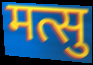
मत्सु